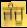
ਜੰਜੂ